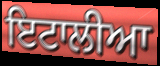
ਇਟਾਲੀਆ